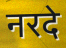
नरदे